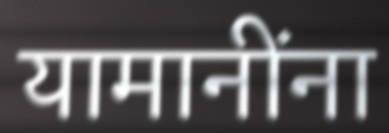
यामानींना